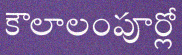
కౌలాలంపూర్లో